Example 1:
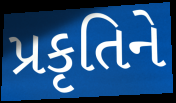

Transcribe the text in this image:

પ્રકૃતિને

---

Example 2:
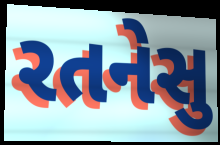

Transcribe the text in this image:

રતનેસુ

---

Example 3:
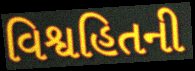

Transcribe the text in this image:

વિશ્વહિતની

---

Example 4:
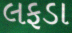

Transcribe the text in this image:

લફડા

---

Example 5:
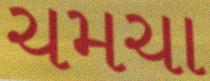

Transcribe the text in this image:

ચમચા